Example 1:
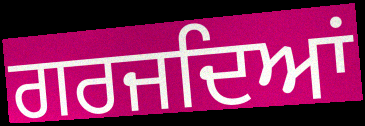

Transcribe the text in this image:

ਗਰਜਦਿਆਂ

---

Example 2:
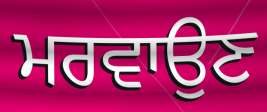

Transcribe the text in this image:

ਮਰਵਾਉਣ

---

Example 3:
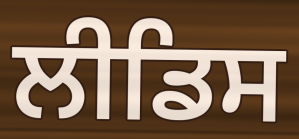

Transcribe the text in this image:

ਲੀਡਿਸ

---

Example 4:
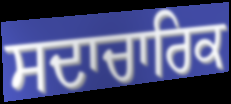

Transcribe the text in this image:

ਸਦਾਚਾਰਿਕ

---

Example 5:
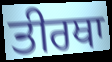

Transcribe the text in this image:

ਤੀਰਥਾ